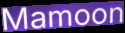
Mamoon